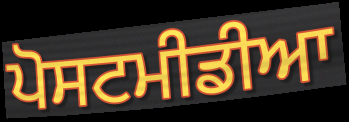
ਪੋਸਟਮੀਡੀਆ